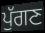
ਪੁੱਗਣ